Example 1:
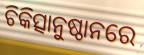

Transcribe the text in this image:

ଚିକିତ୍ସାନୁଷ୍ଠାନରେ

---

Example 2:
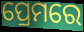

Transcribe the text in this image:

ପ୍ରେମରେ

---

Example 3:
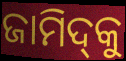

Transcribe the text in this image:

ଜାମିଦ୍‌କୁ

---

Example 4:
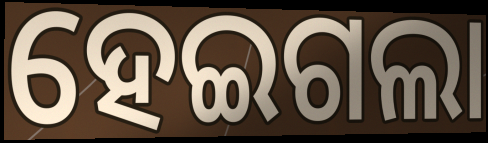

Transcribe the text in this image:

ହେଇଗଲା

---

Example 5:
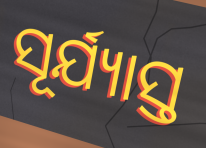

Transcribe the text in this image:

ସୂର୍ଯ୍ୟାସ୍ତ